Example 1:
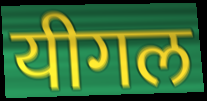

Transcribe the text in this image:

यीगल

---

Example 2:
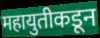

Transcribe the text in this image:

महायुतीकडून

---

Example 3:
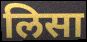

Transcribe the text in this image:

लिसा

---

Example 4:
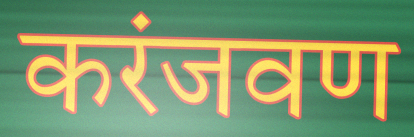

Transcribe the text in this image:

करंजवण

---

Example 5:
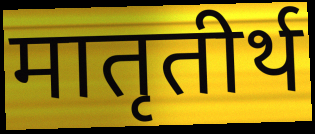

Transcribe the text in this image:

मातृतीर्थ